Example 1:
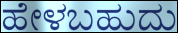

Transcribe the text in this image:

ಹೇಳಬಹುದು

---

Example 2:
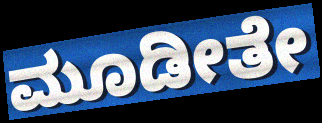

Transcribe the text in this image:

ಮೂಡೀತೇ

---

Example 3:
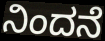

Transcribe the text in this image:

ನಿಂದನೆ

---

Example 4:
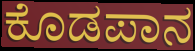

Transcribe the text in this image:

ಕೊಡಪಾನ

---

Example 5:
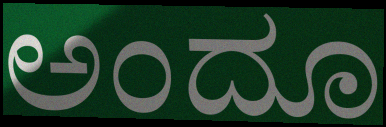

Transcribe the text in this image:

ಅಂದೂ